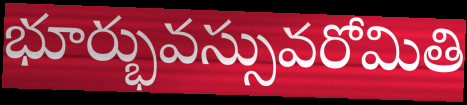
భూర్భువస్సువరోమితి